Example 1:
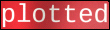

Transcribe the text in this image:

plotted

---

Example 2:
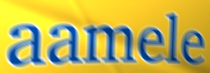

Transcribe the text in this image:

aamele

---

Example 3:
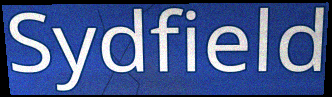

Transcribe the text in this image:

Sydfield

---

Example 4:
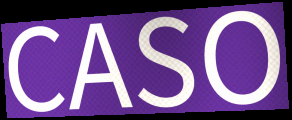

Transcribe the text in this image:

CASO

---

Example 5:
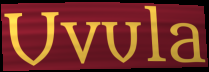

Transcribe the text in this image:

Uvula